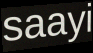
saayi